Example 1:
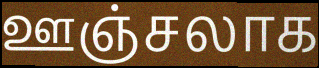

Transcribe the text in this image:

ஊஞ்சலாக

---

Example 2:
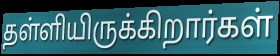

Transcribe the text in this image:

தள்ளியிருக்கிறார்கள்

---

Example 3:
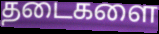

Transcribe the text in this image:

தடைகளை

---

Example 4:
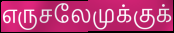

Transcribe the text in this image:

எருசலேமுக்குக்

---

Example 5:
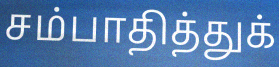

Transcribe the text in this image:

சம்பாதித்துக்